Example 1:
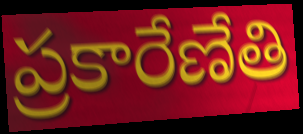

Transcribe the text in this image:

ప్రకారేణేతి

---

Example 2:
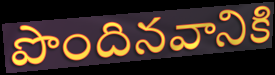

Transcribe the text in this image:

పొందినవానికి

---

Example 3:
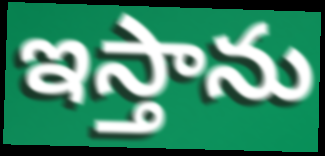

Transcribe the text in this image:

ఇస్తాను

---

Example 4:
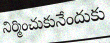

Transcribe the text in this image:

నిర్మించుకునేందుకు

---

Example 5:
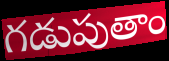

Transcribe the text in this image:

గడుపుతాం